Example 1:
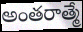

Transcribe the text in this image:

అంతరాత్మే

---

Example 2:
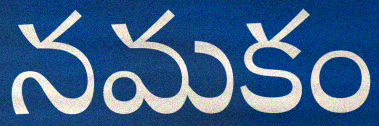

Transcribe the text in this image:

నమకం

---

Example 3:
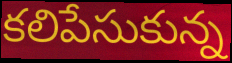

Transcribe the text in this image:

కలిపేసుకున్న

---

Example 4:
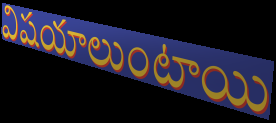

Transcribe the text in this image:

విషయాలుంటాయి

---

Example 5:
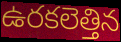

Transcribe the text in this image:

ఉరకలెత్తిన